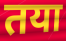
तया